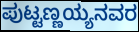
ಪುಟ್ಟಣ್ಣಯ್ಯನವರ